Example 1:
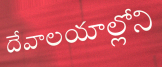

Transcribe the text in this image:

దేవాలయాల్లోని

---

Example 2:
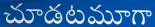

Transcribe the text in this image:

చూడటమూగా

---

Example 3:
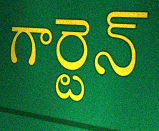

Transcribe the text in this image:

గార్టెన్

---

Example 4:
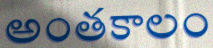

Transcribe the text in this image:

అంతకాలం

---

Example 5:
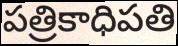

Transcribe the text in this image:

పత్రికాధిపతి